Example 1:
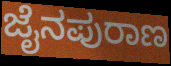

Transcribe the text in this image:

ಜೈನಪುರಾಣ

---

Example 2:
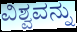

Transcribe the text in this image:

ವಿಶ್ವವನ್ನು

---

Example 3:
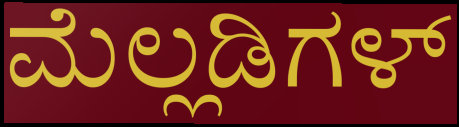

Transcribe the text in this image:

ಮೆಲ್ಲಡಿಗಳ್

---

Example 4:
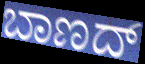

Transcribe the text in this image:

ಬಾಣದ್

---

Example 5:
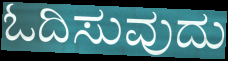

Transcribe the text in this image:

ಓದಿಸುವುದು